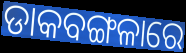
ଡାକବଙ୍ଗଳାରେ